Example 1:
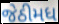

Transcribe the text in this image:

જેઠીમધ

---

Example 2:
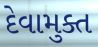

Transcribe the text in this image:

દેવામુક્ત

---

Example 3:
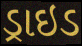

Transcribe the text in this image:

ડ્રાઇડ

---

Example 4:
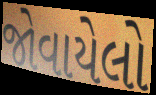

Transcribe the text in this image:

જોવાયેલો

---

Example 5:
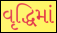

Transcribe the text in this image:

વૃદ્ધિમાં